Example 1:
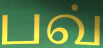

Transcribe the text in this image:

பவ்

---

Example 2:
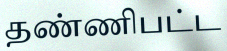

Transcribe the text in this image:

தண்ணிபட்ட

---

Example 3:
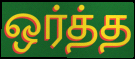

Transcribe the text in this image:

ஒர்த்த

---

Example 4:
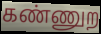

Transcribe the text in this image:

கண்ணுற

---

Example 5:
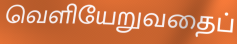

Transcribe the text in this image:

வெளியேறுவதைப்